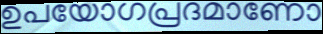
ഉപയോഗപ്രദമാണോ